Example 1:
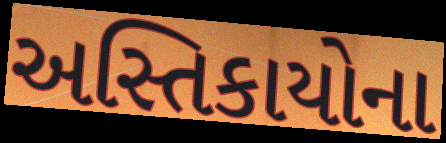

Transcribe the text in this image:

અસ્તિકાયોના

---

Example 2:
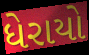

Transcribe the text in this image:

ધેરાયો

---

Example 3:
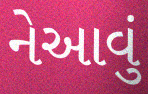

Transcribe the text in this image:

નેઆવું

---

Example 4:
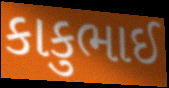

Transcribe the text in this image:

કાકુભાઈ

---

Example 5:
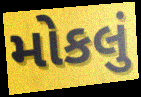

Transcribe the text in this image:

મોકલું